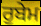
ਰੁਬੇਮ